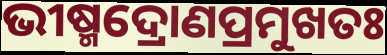
ଭୀଷ୍ମଦ୍ରୋଣପ୍ରମୁଖତଃ